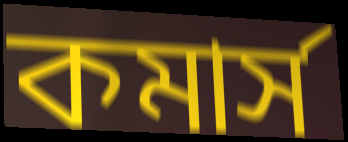
কমার্স